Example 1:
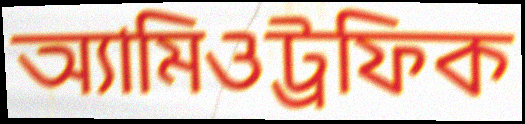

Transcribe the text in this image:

অ্যামিওট্রফিক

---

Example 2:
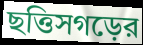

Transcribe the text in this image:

ছত্তিসগড়ের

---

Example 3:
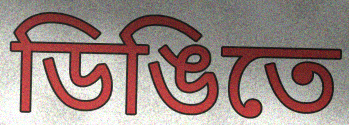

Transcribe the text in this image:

ডিঙিতে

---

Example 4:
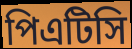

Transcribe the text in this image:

পিএটিসি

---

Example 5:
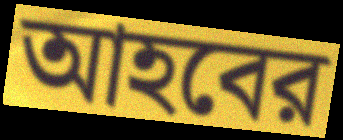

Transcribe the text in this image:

আহবের